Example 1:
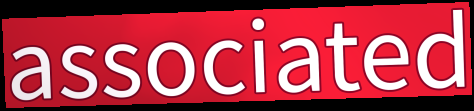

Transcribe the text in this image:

associated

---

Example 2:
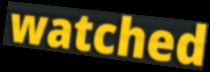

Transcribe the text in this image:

watched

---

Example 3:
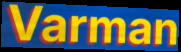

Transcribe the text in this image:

Varman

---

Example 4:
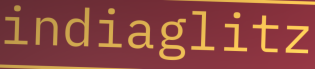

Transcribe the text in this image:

indiaglitz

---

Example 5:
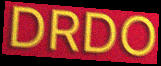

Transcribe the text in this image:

DRDO